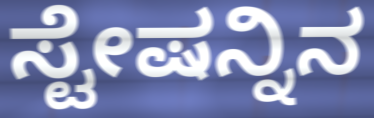
ಸ್ಟೇಷನ್ನಿನ